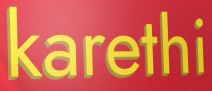
karethi